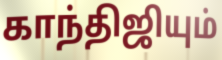
காந்திஜியும்